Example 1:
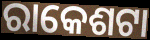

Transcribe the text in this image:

ରାକେଶଟା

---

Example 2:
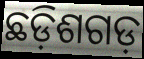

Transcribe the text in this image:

ଛଡ଼ିଶଗଡ଼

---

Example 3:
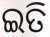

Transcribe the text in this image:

ଇତି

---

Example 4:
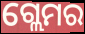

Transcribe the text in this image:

ଗ୍ଲେମର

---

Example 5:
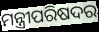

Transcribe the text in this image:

ମନ୍ତ୍ରୀପରିଷଦର